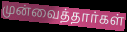
முன்வைத்தார்கள்